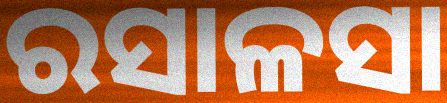
ରସାଳସା